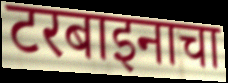
टरबाइनाचा